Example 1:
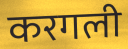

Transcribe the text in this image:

करगली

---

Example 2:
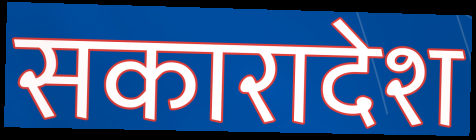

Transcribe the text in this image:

सकारादेश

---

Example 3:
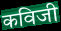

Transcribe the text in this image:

कविजी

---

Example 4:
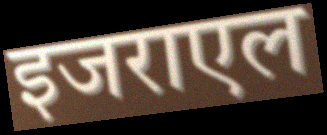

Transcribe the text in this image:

इजराएल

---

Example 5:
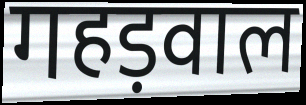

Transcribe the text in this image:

गहड़वाल